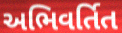
અભિવર્તિત